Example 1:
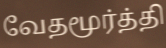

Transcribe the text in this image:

வேதமூர்த்தி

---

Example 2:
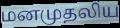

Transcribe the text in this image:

மனமுதலிய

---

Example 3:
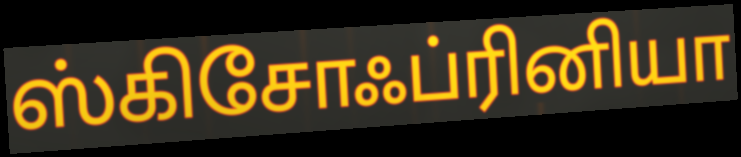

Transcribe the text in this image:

ஸ்கிசோஃப்ரினியா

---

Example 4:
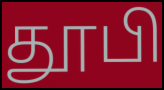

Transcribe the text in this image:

தூபி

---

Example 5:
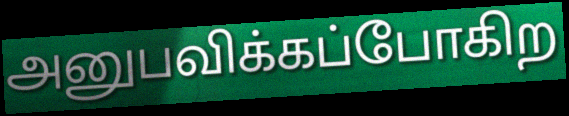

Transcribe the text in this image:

அனுபவிக்கப்போகிற